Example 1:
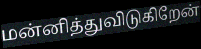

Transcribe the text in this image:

மன்னித்துவிடுகிறேன்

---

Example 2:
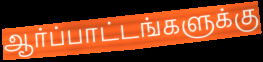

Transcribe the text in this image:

ஆர்ப்பாட்டங்களுக்கு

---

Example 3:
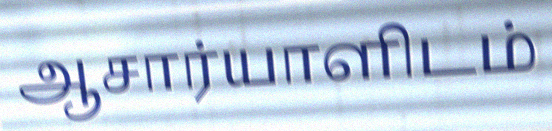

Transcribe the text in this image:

ஆசார்யாளிடம்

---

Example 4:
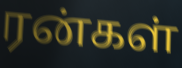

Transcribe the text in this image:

ரன்கள்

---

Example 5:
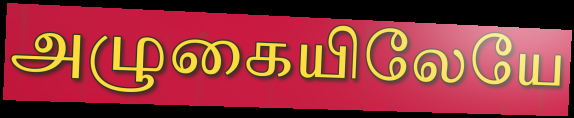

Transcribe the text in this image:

அழுகையிலேயே